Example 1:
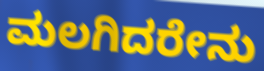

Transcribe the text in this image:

ಮಲಗಿದರೇನು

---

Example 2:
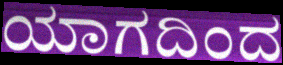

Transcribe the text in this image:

ಯಾಗದಿಂದ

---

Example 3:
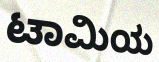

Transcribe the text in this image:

ಟಾಮಿಯ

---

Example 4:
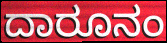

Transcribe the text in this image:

ದಾರೂನಂ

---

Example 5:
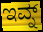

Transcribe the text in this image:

ಇವ್ನ್